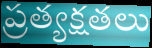
ప్రత్యక్షతలు